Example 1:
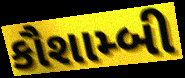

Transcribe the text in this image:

કૌશામ્બી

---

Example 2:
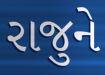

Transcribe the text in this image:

રાજુને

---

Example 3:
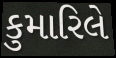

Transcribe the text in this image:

કુમારિલે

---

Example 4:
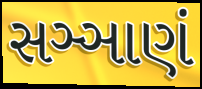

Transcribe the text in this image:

સઞ્ઞાણં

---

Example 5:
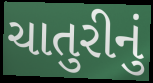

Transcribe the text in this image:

ચાતુરીનું